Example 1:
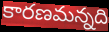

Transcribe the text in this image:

కారణమన్నది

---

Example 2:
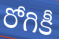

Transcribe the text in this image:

రోగికీ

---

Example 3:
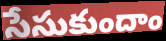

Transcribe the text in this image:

సేసుకుందాం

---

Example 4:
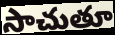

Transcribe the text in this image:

సాచుతూ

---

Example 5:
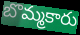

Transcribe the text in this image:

బొమ్మకారు